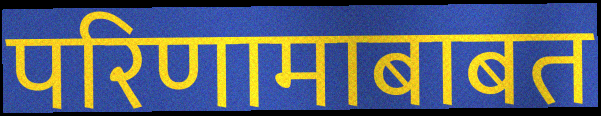
परिणामाबाबत